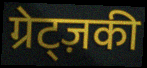
ग्रेट्ज़की